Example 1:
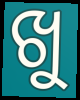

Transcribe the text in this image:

ଖୁ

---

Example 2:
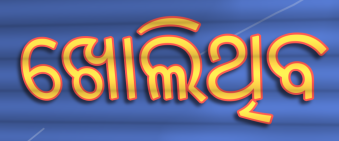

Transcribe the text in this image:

ଖୋଲିଥିବ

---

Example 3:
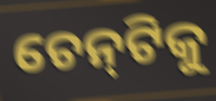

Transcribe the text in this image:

ଚେନ୍‌ଟିକୁ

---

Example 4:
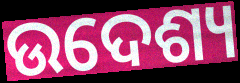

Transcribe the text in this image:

ଉଦେଶ୍ୟ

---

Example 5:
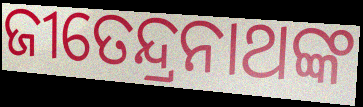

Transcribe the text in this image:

ଜୀତେନ୍ଦ୍ରନାଥଙ୍କ